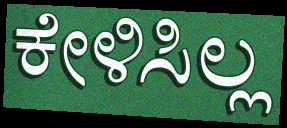
ಕೇಳಿಸಿಲ್ಲ